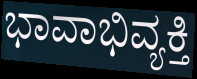
ಭಾವಾಭಿವ್ಯಕ್ತಿ